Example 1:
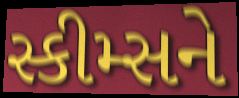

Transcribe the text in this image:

સ્કીમ્સને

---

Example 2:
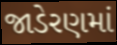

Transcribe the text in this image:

જાડેરણમાં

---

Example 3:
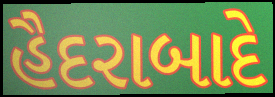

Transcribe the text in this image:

હૈદરાબાદે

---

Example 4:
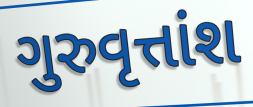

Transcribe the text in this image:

ગુરુવૃત્તાંશ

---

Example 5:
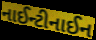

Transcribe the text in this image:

નાઈન્ટીનાઈન